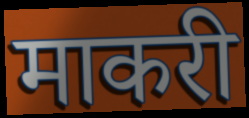
माकरी